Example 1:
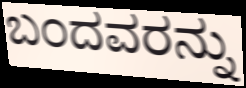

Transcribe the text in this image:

ಬಂದವರನ್ನು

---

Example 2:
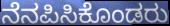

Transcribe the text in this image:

ನೆನಪಿಸಿಕೊಂಡರು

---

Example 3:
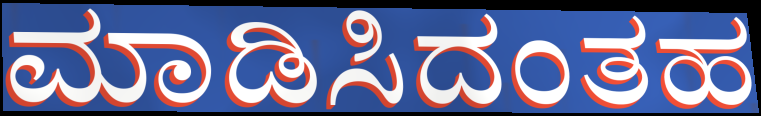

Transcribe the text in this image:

ಮಾಡಿಸಿದಂತಹ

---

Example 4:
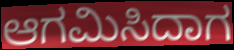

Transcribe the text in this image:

ಆಗಮಿಸಿದಾಗ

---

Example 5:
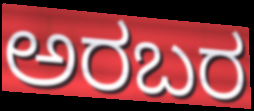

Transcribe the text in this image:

ಅರಬರ